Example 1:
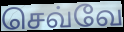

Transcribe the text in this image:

செவ்வே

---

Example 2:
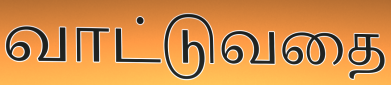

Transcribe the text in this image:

வாட்டுவதை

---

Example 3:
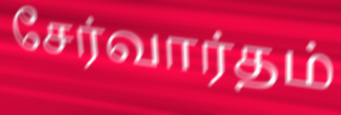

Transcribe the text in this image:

சேர்வார்தம்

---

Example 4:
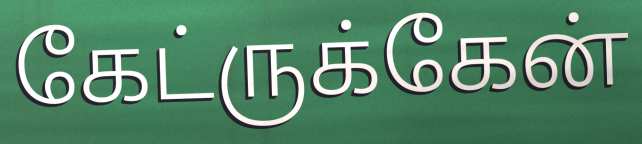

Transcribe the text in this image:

கேட்ருக்கேன்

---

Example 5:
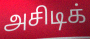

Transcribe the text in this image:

அசிடிக்